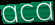
aca